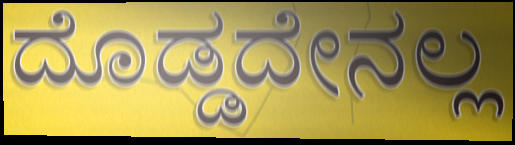
ದೊಡ್ಡದೇನಲ್ಲ